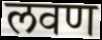
लवण